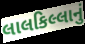
લાલકિલ્લાનું